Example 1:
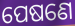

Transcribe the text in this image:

ପେଷଣେ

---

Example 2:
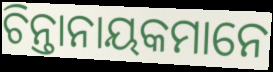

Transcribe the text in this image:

ଚିନ୍ତାନାୟକମାନେ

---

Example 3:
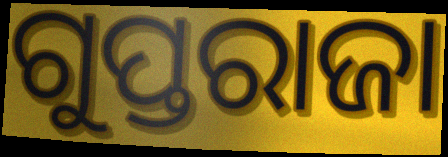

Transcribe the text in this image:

ଗୁପ୍ତରାଜା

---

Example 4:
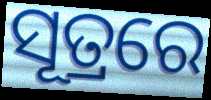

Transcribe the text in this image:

ସୂତ୍ରରେ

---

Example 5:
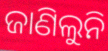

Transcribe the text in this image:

ଜାଣିଲୁନି